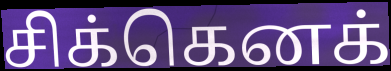
சிக்கெனக்